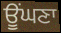
ਊਂਘਣਾ